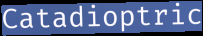
Catadioptric